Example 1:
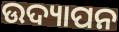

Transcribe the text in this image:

ଉଦ୍ୟାପନ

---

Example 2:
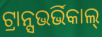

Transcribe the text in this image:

ଟ୍ରାନ୍ସଭର୍ଭିକାଲ୍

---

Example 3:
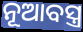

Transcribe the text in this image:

ନୂଆବସ୍ତ୍ର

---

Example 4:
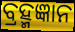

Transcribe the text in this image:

ବ୍ରହ୍ମଜ୍ଞାନ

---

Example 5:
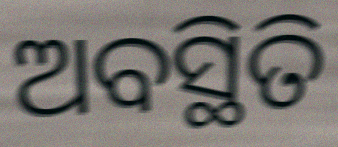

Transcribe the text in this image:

ଅବସ୍ଥିତି